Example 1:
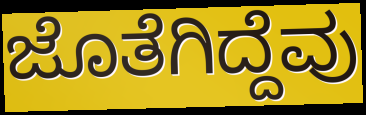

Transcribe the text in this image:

ಜೊತೆಗಿದ್ದೆವು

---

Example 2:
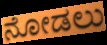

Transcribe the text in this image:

ನೋಡಲು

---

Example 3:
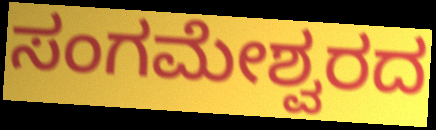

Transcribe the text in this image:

ಸಂಗಮೇಶ್ವರದ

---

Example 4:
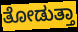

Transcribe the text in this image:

ತೋಡುತ್ತಾ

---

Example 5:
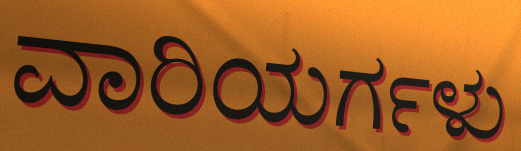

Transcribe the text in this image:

ವಾರಿಯರ್ಗಳು